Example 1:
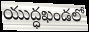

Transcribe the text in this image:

యుద్ధఖండలో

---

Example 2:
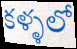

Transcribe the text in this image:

కళ్ళలో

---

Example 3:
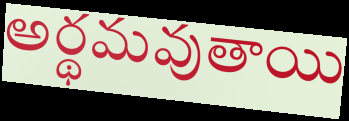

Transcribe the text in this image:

అర్థమవుతాయి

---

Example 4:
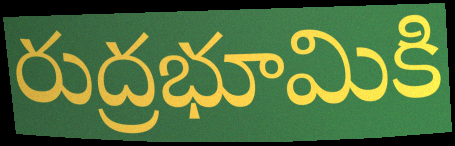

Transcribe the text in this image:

రుద్రభూమికి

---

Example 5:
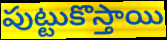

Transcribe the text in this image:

పుట్టుకొస్తాయి